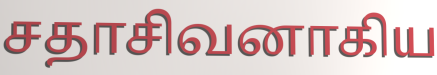
சதாசிவனாகிய